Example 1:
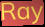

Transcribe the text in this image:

Ray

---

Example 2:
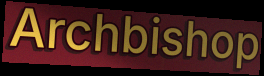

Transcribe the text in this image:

Archbishop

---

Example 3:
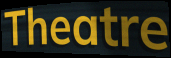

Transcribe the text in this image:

Theatre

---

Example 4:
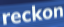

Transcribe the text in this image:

reckon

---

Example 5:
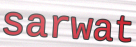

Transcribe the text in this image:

sarwat